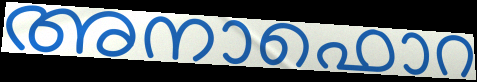
അനാഫൊറ